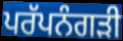
ਪਰੱਪਨੰਗੜੀ